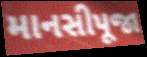
માનસીપૂજા